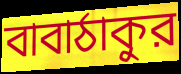
বাবাঠাকুর